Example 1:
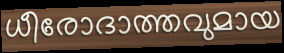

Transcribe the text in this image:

ധീരോദാത്തവുമായ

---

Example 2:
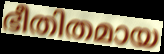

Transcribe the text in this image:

ഭീതിതമായ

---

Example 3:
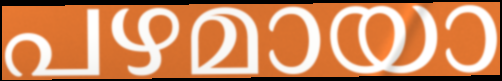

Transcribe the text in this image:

പഴമായാ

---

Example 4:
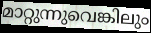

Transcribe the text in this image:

മാറ്റുന്നുവെങ്കിലും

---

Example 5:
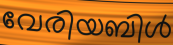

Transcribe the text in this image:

വേരിയബിൾ